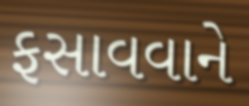
ફસાવવાને